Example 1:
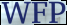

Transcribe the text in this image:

WFP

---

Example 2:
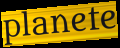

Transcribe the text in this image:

planete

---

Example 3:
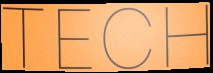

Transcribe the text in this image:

TECH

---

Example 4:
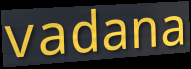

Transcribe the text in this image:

vadana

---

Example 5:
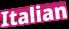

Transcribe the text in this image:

Italian